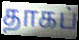
தாகப்